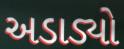
અડાડ્યો